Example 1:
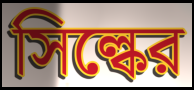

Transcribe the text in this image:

সিল্কের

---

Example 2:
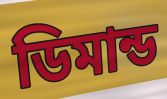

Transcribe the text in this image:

ডিমান্ড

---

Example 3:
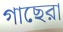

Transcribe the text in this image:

গাছেরা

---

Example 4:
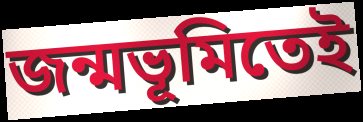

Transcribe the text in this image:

জন্মভূমিতেই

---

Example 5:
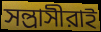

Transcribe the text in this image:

সন্ত্রাসীরাই